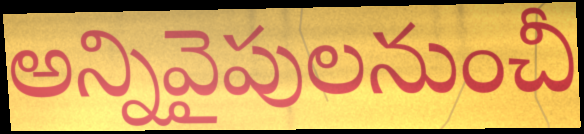
అన్నివైపులనుంచీ